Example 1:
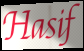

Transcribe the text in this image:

Hasif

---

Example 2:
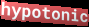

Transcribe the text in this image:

hypotonic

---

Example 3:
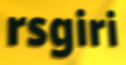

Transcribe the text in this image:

rsgiri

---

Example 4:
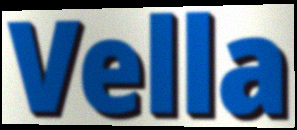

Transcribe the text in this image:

Vella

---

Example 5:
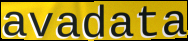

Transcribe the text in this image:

avadata